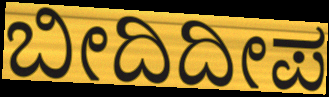
ಬೀದಿದೀಪ